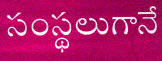
సంస్థలుగానే